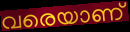
വരെയാണ്